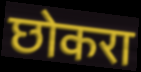
छोकरा